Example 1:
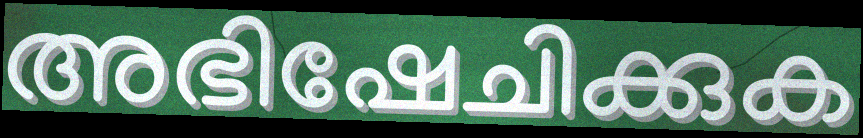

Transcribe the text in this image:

അഭിഷേചിക്കുക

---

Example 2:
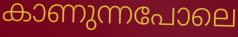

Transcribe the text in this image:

കാണുന്നപോലെ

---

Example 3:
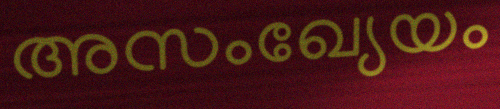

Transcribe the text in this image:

അസംഖ്യേയം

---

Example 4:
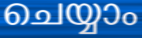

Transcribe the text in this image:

ചെയ്യാം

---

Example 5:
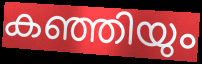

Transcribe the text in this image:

കഞ്ഞിയും